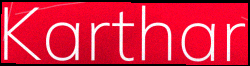
Karthar